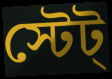
স্টেট্